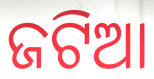
ଜଟିଆ